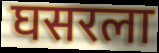
घसरला